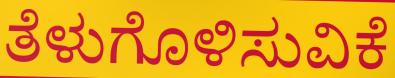
ತೆಳುಗೊಳಿಸುವಿಕೆ